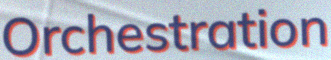
Orchestration